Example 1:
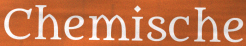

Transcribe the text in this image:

Chemische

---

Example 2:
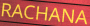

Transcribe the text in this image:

RACHANA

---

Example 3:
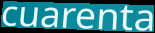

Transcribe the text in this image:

cuarenta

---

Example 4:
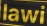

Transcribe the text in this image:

lawi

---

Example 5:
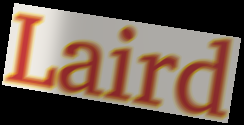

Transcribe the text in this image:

Laird